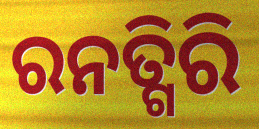
ରନତ୍ଗିରି